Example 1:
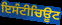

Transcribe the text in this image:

ਇਸੰਟੀਚਿਊਟ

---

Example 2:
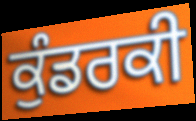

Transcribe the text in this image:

ਕੁੰਡਰਕੀ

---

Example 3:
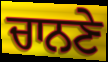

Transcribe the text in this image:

ਚਾਨਣੇ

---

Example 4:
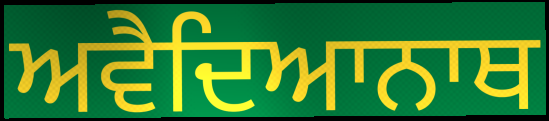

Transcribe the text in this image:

ਅਵੈਦਿਆਨਾਥ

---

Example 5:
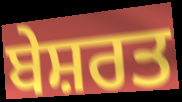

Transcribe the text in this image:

ਬੇਸ਼ਰਤ